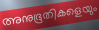
അനുഭൂതികളെയും